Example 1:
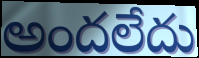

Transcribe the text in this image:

అందలేదు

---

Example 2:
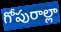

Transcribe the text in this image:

గోపురాల్లా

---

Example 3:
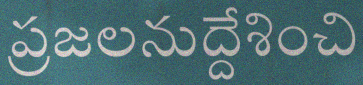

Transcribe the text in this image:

ప్రజలనుద్దేశించి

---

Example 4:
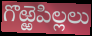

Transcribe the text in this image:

గొఱ్ఱెపిల్లలు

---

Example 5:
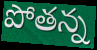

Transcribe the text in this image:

పోతన్న